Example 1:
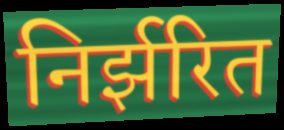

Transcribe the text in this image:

निर्झरित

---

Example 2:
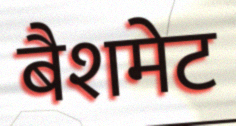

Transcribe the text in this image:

बैशमेट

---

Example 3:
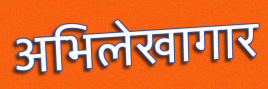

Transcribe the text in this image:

अभिलेखागार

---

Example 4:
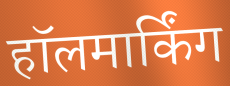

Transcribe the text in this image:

हॉलमार्किंग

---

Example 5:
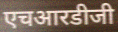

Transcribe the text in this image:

एचआरडीजी